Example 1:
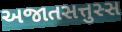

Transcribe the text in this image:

અજાતસત્તુસ્સ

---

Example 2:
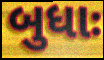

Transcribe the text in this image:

બુધાઃ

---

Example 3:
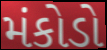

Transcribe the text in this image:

મંકોડો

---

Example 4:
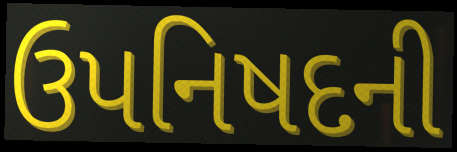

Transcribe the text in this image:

ઉપનિષદની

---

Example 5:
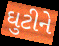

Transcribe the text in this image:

ઘુટીને